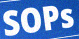
SOPs